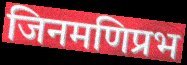
जिनमणिप्रभ